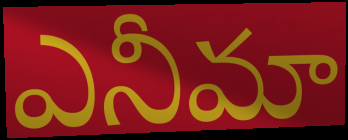
ఎనీమా